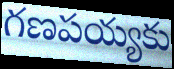
గణపయ్యకు